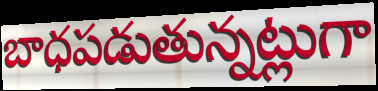
బాధపడుతున్నట్లుగా